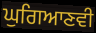
ਘੁਗਿਆਣਵੀ